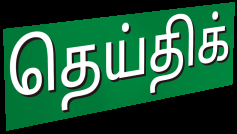
தெய்திக்